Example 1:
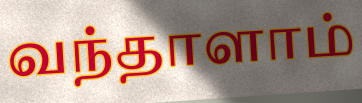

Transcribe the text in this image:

வந்தாளாம்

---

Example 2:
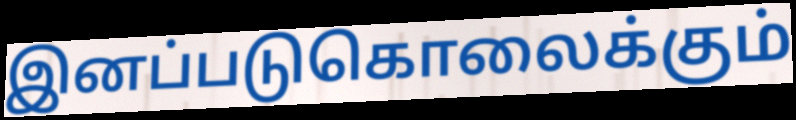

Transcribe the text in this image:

இனப்படுகொலைக்கும்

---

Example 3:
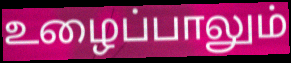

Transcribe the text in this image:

உழைப்பாலும்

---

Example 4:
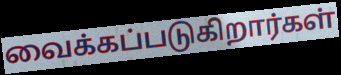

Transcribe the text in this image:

வைக்கப்படுகிறார்கள்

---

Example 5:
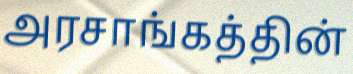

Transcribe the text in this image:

அரசாங்கத்தின்